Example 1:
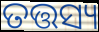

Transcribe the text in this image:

ତତ୍ତସ୍ୟ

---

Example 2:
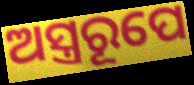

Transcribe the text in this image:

ଅସ୍ତ୍ରରୂପେ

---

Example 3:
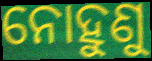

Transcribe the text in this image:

ନୋହୁଣୁ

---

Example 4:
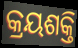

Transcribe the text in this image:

କ୍ରୟଶକ୍ତି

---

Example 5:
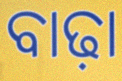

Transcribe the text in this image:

ବାଢ଼ା